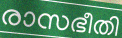
രാസഭീതി